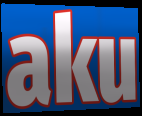
aku